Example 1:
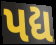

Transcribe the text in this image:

પદ્ય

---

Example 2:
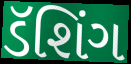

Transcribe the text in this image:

ડૅશિંગ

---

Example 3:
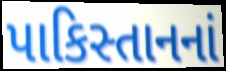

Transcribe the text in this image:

પાકિસ્તાનનાં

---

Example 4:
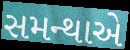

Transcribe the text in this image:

સમન્થાએ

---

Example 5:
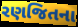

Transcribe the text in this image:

રણજિતના